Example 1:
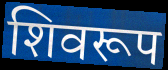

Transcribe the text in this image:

शिवरूप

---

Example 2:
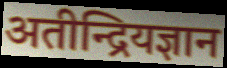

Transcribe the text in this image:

अतीन्द्रियज्ञान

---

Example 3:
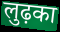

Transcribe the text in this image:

लुढ़का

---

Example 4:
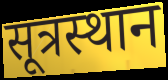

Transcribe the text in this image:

सूत्रस्थान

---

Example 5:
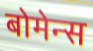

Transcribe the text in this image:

बोमेन्स